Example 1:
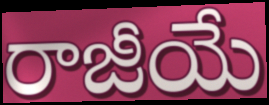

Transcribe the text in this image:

రాజీయే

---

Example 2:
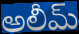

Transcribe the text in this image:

అలీమ్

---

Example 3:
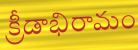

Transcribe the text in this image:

క్రీడాభిరామం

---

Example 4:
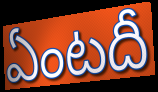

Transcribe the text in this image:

ఏంటదీ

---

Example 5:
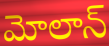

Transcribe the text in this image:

మోలాన్